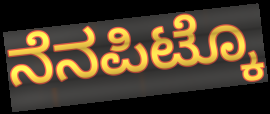
ನೆನಪಿಟ್ಕೊ